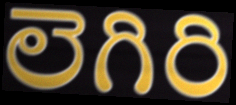
లెగిరి